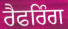
ਰੈਫਰਿੰਗ